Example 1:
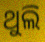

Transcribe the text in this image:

ଥୁଲି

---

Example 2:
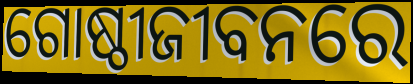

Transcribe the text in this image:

ଗୋଷ୍ଠୀଜୀବନରେ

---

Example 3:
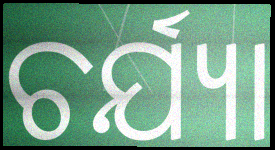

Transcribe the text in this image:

ଚର୍ଯ୍ଯା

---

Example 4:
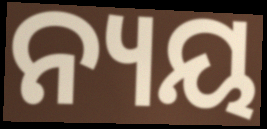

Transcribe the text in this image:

ନ୍ୟୟ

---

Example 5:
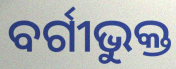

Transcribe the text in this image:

ବର୍ଗୀଭୁକ୍ତ